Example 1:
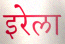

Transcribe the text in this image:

इरेला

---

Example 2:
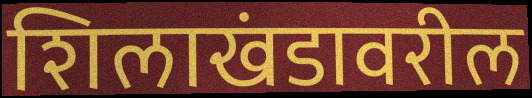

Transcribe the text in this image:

शिलाखंडावरील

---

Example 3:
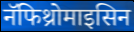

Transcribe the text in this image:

नॅफिथ्रोमाइसिन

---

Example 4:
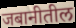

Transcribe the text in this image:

जबानीतील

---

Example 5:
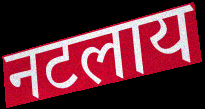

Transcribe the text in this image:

नटलाय